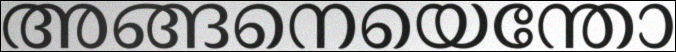
അങ്ങനെയെന്തോ